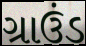
ગ્રાઉંડ